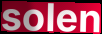
solen